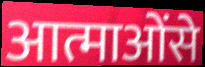
आत्माओंसे